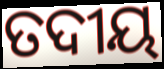
ତଦୀୟ